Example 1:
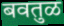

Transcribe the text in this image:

बवतुळ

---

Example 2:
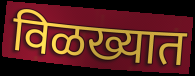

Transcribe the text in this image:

विळख्यात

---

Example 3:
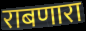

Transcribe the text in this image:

राबणारा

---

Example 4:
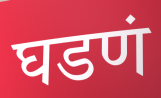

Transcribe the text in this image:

घडणं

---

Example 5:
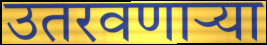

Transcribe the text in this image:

उतरवणाऱ्या